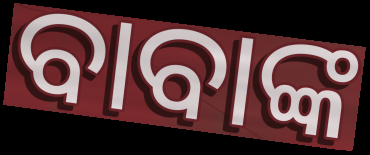
ବାବାଙ୍କ